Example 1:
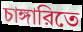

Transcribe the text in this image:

চাঙ্গারিতে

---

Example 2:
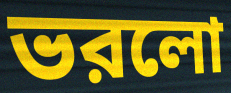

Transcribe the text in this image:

ভরলো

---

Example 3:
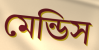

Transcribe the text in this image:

মেন্ডিস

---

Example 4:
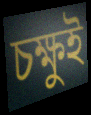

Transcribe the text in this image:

চক্ষুই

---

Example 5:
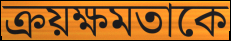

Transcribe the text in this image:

ক্রয়ক্ষমতাকে